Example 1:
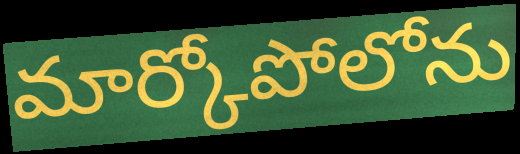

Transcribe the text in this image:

మార్కోపోలోను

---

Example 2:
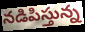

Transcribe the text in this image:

నడిపిస్తున్న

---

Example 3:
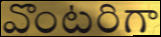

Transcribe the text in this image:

వొంటరిగా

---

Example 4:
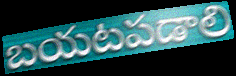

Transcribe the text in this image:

బయటపడాలి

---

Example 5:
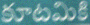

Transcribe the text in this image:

కూటమికి